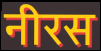
नीरस